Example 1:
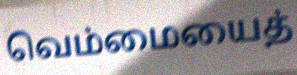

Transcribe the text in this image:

வெம்மையைத்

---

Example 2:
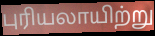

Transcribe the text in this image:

புரியலாயிற்று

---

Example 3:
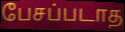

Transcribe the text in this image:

பேசப்படாத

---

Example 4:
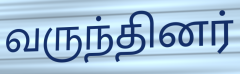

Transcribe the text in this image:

வருந்தினர்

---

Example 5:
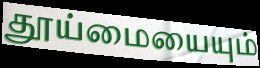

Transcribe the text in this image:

தூய்மையையும்